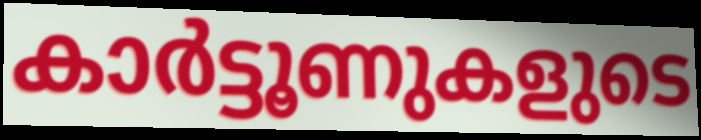
കാർട്ടൂണുകളുടെ